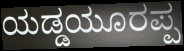
ಯಡ್ಡಯೂರಪ್ಪ